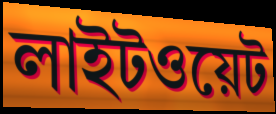
লাইটওয়েট